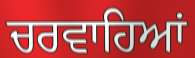
ਚਰਵਾਹਿਆਂ